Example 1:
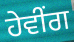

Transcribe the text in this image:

ਹੇਵੀੰਗ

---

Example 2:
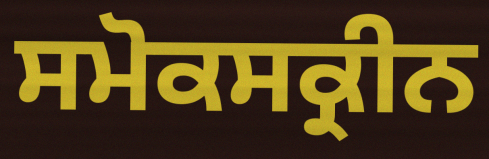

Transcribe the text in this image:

ਸਮੋਕਸਕ੍ਰੀਨ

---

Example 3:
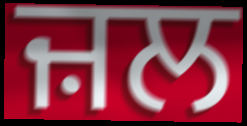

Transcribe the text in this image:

ਜ਼ਲ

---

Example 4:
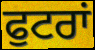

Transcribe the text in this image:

ਫੁਟਰਾਂ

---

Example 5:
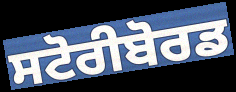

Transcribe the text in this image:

ਸਟੋਰੀਬੋਰਡ